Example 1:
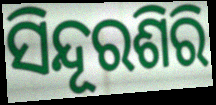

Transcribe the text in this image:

ସିନ୍ଦୂରଶିରି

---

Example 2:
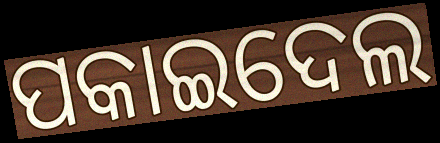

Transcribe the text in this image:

ପକାଇଦେଲ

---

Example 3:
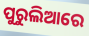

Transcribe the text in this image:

ପୁରୁଲିଆରେ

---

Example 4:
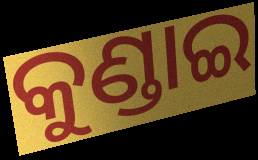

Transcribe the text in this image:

କୁଣ୍ଡାଇ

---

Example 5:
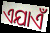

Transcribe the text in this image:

ଏଯାଏଁ